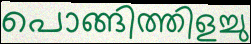
പൊങ്ങിത്തിളച്ചു